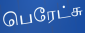
பெரேட்சு